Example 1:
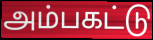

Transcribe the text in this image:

அம்பகட்டு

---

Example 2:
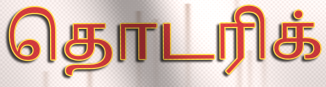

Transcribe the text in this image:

தொடரிக்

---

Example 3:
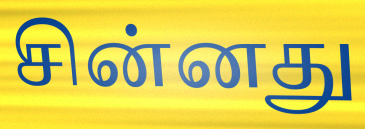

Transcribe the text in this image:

சின்னது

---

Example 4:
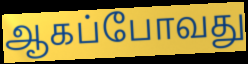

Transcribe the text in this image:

ஆகப்போவது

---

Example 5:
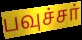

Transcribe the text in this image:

பவுச்சர்